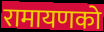
रामायणको